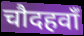
चौदहवाँ